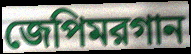
জেপিমরগান